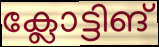
ക്ലോട്ടിങ്